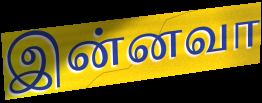
இன்னவா